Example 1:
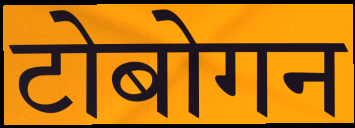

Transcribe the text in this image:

टोबोगन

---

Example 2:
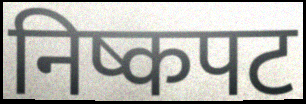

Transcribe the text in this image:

निष्कपट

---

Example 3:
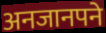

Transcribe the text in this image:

अनजानपने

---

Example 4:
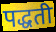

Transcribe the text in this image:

पद्धती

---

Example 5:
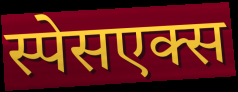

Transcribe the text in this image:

स्‍पेसएक्‍स